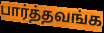
பார்த்தவங்க